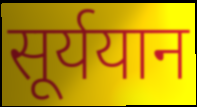
सूर्ययान